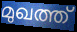
മുഖത്ത്